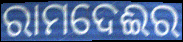
ରାମଦେଈର